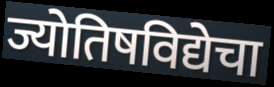
ज्योतिषविद्येचा